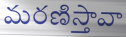
మరణిస్తావా